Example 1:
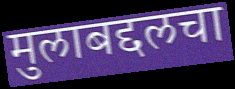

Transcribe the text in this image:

मुलाबद्दलचा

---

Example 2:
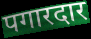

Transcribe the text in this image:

पगारदार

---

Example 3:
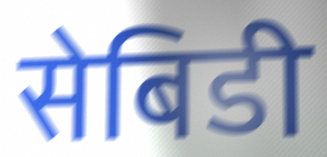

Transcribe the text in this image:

सेबिडी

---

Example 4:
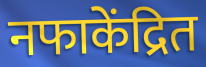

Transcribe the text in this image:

नफाकेंद्रित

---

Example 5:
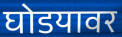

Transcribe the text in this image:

घोडयावर